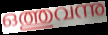
ഒത്തുവന്നു